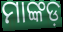
ମାଙ୍କଡ଼